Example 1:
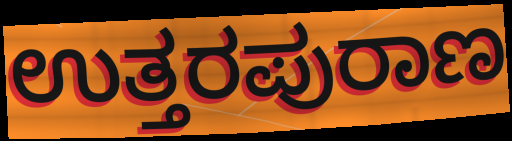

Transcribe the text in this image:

ಉತ್ತರಪುರಾಣ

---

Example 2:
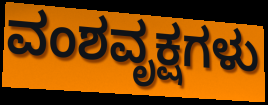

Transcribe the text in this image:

ವಂಶವೃಕ್ಷಗಳು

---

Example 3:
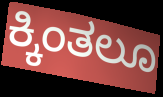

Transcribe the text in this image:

ಕ್ಕಿಂತಲೂ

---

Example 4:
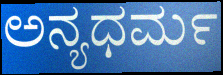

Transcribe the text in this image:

ಅನ್ಯಧರ್ಮ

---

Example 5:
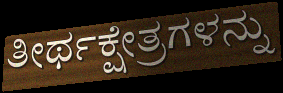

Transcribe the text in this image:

ತೀರ್ಥಕ್ಷೇತ್ರಗಳನ್ನು